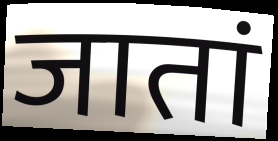
जातां